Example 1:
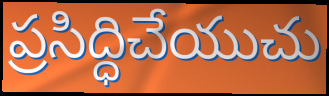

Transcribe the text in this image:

ప్రసిద్ధిచేయుచు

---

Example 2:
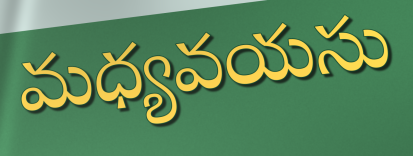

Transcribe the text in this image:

మధ్యవయసు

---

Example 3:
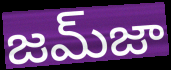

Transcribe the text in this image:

జమ్‌జా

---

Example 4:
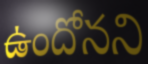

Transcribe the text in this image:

ఉందోనని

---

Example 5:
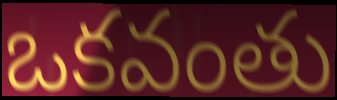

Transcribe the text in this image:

ఒకవంతు